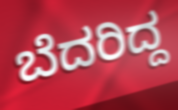
ಬೆದರಿದ್ದ